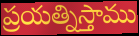
ప్రయత్నిస్తాము